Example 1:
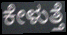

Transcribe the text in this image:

ಕೇಳುತ್ತೆ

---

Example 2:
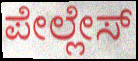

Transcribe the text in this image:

ಪೇಲ್ಲೇಸ್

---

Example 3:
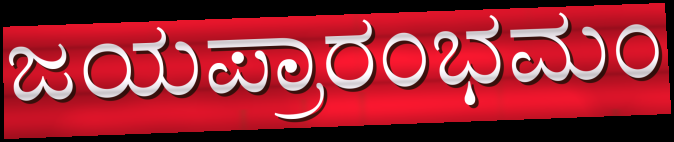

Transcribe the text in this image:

ಜಯಪ್ರಾರಂಭಮಂ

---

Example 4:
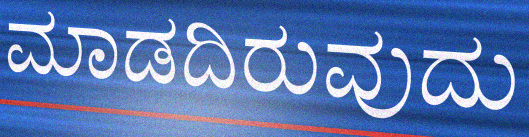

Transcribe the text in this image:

ಮಾಡದಿರುವುದು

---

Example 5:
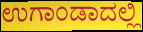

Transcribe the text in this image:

ಉಗಾಂಡಾದಲ್ಲಿ